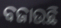
ବଜାଉଛି